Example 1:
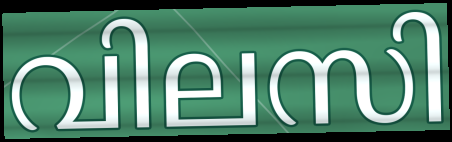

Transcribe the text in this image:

വിലസി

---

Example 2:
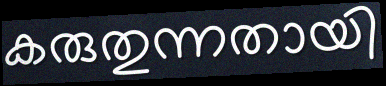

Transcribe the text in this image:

കരുതുന്നതായി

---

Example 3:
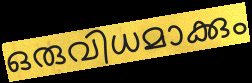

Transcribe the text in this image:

ഒരുവിധമാക്കും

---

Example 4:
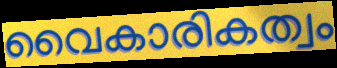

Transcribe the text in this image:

വൈകാരികത്വം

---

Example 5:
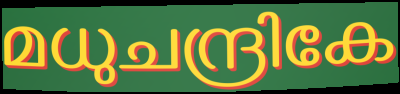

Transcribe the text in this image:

മധുചന്ദ്രികേ